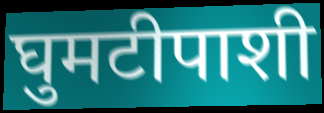
घुमटीपाशी